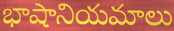
భాషానియమాలు